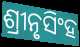
ଶ୍ରୀନୃସିଂହ